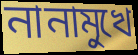
নানামুখে